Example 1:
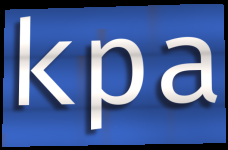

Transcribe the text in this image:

kpa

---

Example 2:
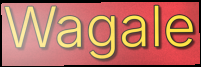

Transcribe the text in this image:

Wagale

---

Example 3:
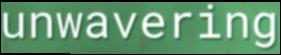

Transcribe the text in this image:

unwavering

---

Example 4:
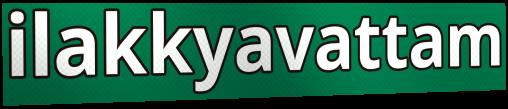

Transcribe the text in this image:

ilakkyavattam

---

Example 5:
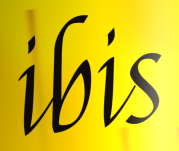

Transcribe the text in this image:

ibis